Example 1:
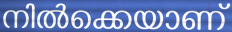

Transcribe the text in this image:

നിൽക്കെയാണ്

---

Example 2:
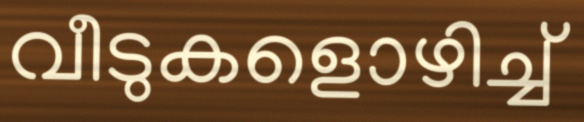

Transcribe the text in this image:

വീടുകളൊഴിച്ച്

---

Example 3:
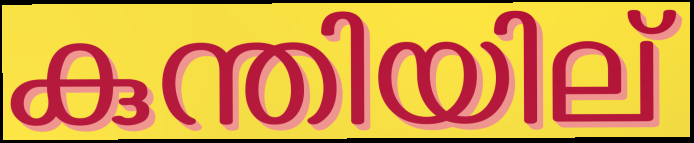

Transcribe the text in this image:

കുന്തിയില്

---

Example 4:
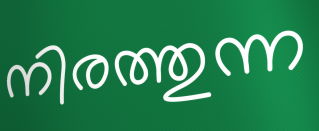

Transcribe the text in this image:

നിരത്തുന്ന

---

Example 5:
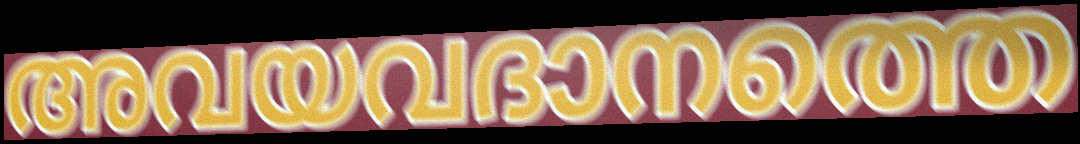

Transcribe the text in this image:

അവയവദാനത്തെ